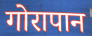
गोरापान